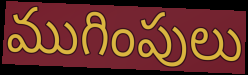
ముగింపులు